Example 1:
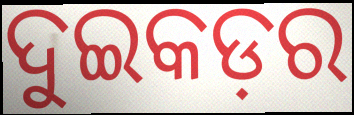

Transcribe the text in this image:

ଦୁଇକଡ଼ର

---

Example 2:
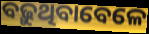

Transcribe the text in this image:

ବଢ଼ୁଥିବାବେଳେ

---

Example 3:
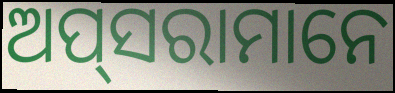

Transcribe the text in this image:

ଅପ୍‍ସରାମାନେ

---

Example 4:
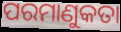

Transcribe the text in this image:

ପରମାଣୁକତା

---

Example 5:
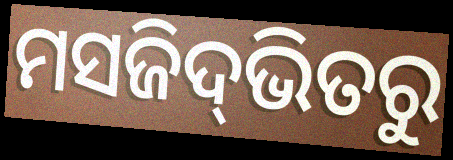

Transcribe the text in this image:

ମସଜିଦ୍‌ଭିତରୁ